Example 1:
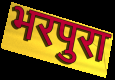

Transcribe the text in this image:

भरपुरा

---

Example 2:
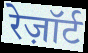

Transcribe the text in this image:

रेज़ॉर्ट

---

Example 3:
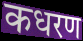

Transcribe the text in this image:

कधरण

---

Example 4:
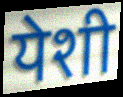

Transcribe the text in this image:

येशी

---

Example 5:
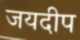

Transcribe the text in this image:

जयदीप